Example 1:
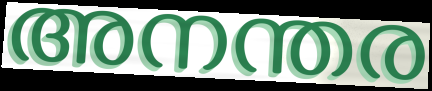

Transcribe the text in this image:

അനന്തര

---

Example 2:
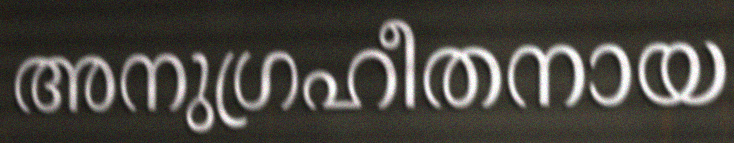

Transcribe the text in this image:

അനുഗ്രഹീതനായ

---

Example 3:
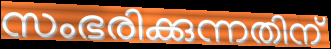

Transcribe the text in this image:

സംഭരിക്കുന്നതിന്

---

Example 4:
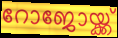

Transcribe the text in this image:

റോജോയ്ക്ക്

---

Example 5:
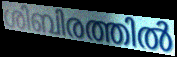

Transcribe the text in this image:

ശിബിരത്തിൽ